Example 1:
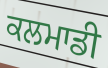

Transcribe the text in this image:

ਕਲਮਾਡੀ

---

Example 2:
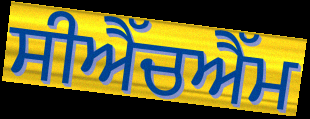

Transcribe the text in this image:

ਸੀਐੱਚਐੱਮ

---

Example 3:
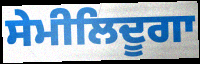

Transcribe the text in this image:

ਸੇਮੀਲਿਦੂਗਾ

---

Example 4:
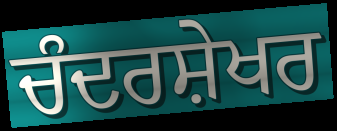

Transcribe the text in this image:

ਚੰਦਰਸ਼ੇਖਰ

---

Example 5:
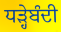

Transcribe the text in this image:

ਧੜ੍ਹੇਬੰਦੀ